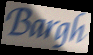
Bargh